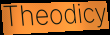
Theodicy